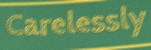
Carelessly